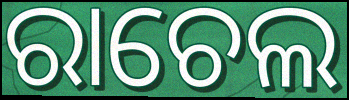
ରାଚେଲ